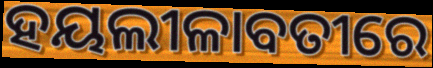
ହୟଲୀଳାବତୀରେ